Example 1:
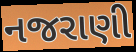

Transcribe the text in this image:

નજરાણી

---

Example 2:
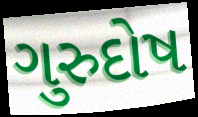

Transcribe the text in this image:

ગુરુદોષ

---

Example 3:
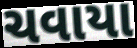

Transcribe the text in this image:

ચવાયા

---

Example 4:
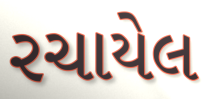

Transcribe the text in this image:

રચાયેલ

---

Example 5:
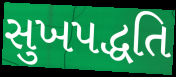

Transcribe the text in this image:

સુખપદ્ધતિ